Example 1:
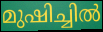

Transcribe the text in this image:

മുഷിച്ചിൽ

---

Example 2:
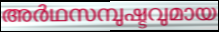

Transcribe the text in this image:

അർഥസമ്പുഷ്ടവുമായ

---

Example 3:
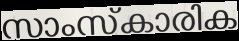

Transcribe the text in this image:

സാംസ്‌കാരിക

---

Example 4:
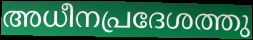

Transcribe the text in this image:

അധീനപ്രദേശത്തു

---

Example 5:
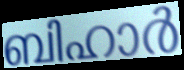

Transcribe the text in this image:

ബിഹാർ